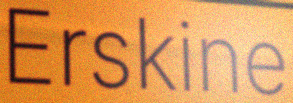
Erskine